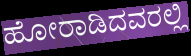
ಹೋರಾಡಿದವರಲ್ಲಿ